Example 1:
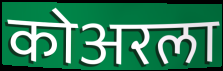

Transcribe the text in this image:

कोअरला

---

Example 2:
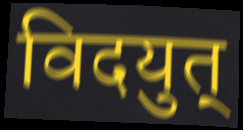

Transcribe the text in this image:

विदयुत्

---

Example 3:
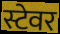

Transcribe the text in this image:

स्टेवर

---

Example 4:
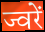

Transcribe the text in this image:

ज्वरें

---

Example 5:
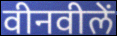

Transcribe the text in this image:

वीनवीलें